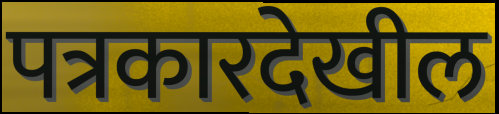
पत्रकारदेखील